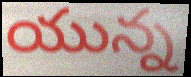
యున్న